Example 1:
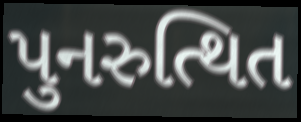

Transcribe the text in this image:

પુનરુત્થિત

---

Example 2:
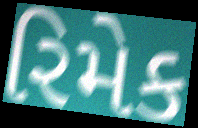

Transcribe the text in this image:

રિમેક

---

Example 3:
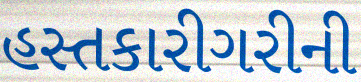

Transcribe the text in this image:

હસ્તકારીગરીની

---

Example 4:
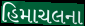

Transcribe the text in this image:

હિમાચલના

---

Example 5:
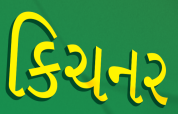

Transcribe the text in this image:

કિચનર